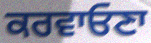
ਕਰਵਾਓਣਾ